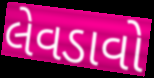
લેવડાવો